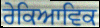
ਰੇਕਿਆਵਿਕ